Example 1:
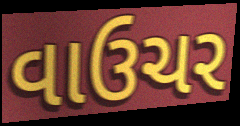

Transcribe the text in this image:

વાઉચર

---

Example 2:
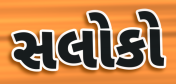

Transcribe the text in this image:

સલોકો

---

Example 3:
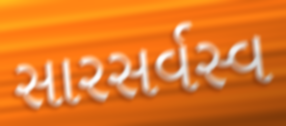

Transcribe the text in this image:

સારસર્વસ્વ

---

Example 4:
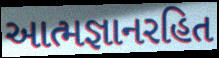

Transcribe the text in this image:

આત્મજ્ઞાનરહિત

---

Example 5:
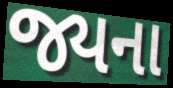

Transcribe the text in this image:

જ્યના